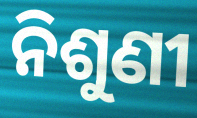
ନିଶୁଣୀ